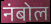
नंबोल